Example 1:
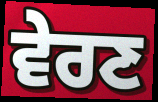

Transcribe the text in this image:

ਵੇਰਣ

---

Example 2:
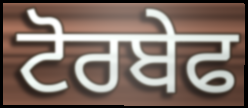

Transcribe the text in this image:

ਟੋਰਬੇਫ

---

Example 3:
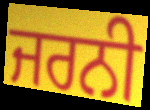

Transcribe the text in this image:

ਜਰਨੀ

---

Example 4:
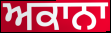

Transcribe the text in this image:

ਅਕਾਨਾ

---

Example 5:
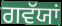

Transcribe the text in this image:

ਗਵੱਯਾਂ